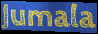
Jumala